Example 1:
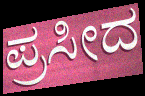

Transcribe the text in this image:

ಪ್ರಸೀದ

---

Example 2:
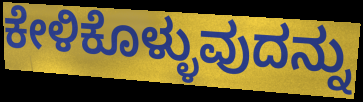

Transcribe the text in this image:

ಕೇಳಿಕೊಳ್ಳುವುದನ್ನು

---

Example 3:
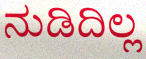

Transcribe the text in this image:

ನುಡಿದಿಲ್ಲ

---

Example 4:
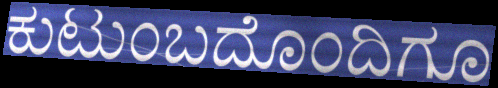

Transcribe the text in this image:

ಕುಟುಂಬದೊಂದಿಗೂ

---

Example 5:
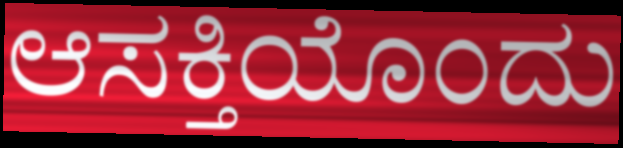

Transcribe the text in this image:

ಆಸಕ್ತಿಯೊಂದು